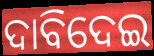
ଦାବିଦେଇ